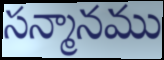
సన్మానము